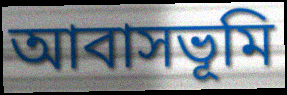
আবাসভূমি